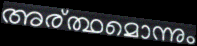
അര്ത്ഥമൊന്നും